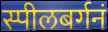
स्पीलबर्गनं